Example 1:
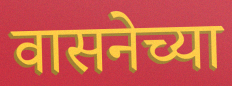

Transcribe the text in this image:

वासनेच्या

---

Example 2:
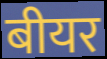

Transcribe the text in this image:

बीयर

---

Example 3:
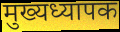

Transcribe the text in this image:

मुख्यध्यापक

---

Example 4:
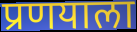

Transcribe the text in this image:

प्रणयाला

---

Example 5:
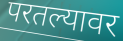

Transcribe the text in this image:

परतल्यावर